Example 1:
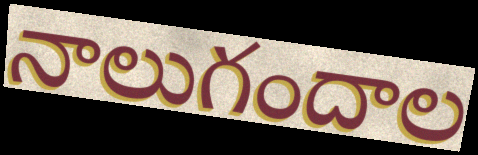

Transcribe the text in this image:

నాలుగందాల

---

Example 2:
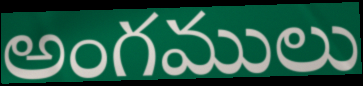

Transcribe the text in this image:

అంగములు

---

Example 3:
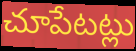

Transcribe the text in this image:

చూపేటట్లు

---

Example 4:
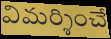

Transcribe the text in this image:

విమర్శించే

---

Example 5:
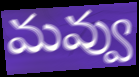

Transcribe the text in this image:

మవ్వు